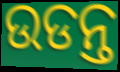
ଉଡନ୍ତ